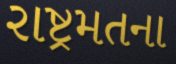
રાષ્ટ્રમતના